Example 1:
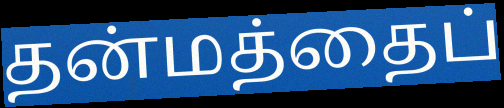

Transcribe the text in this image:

தன்மத்தைப்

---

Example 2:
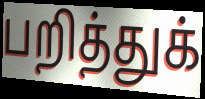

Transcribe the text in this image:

பறித்துக்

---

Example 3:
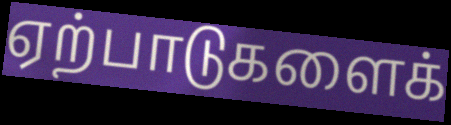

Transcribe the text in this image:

ஏற்பாடுகளைக்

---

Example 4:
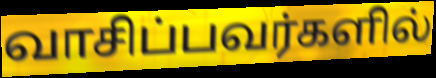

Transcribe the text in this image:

வாசிப்பவர்களில்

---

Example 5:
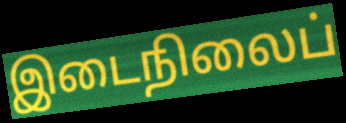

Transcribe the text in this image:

இடைநிலைப்